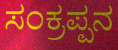
ಸಂಕ್ರಪ್ಪನ